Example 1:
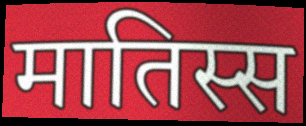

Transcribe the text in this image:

मातिस्स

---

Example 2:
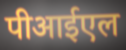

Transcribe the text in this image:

पीआईएल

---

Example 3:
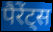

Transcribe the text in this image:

पैरेंट्स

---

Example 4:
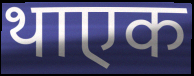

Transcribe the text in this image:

थाएक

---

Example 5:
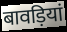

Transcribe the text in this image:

बावड़ियां